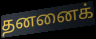
தனனைக்